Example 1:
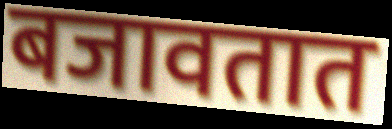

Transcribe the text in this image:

बजावतात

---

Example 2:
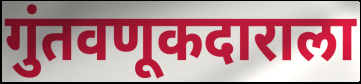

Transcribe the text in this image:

गुंतवणूकदाराला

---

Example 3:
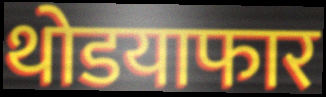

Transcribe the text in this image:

थोडयाफार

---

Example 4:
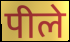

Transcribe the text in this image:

पीले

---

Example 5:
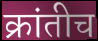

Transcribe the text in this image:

क्रांतीच